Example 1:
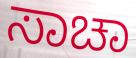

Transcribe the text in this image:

ಸಾಚಾ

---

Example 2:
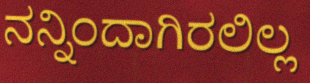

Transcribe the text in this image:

ನನ್ನಿಂದಾಗಿರಲಿಲ್ಲ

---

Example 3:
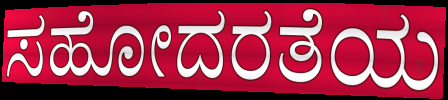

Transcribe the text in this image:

ಸಹೋದರತೆಯ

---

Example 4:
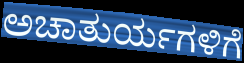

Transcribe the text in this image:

ಅಚಾತುರ್ಯಗಳಿಗೆ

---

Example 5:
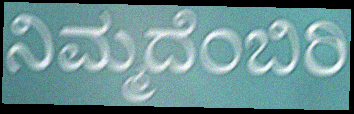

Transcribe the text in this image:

ನಿಮ್ಮದೆಂಬಿರಿ